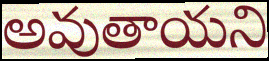
అవుతాయని